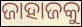
ଜାହାଜକୁ